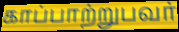
காப்பாற்றுபவர்